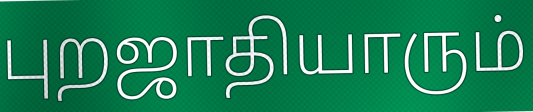
புறஜாதியாரும்